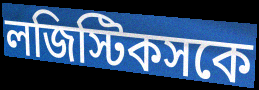
লজিস্টিকসকে